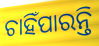
ଚାହିଁପାରନ୍ତି